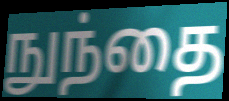
நுந்தை